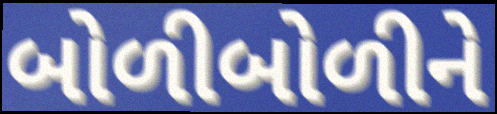
બોળીબોળીને